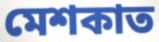
মেশকাত